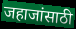
जहाजांसाठी